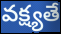
వక్ష్యతే